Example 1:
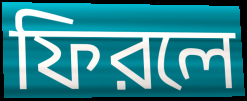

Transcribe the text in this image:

ফিরলে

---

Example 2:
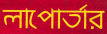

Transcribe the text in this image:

লাপোর্তার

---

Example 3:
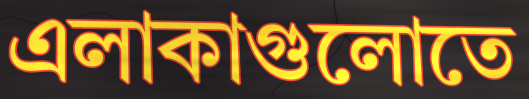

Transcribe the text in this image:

এলাকাগুলোতে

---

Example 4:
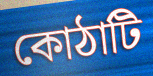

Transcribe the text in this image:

কোঠাটি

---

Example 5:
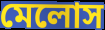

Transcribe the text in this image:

মেলোস